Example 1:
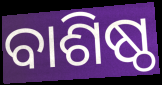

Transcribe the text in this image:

ବାଶିଷ୍ଠ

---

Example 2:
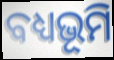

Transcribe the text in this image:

ବଧ୍ୟଭୂମି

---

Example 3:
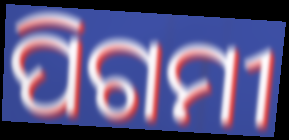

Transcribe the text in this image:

ପିଗମୀ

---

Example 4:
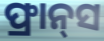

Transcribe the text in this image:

ଫ୍ରାନ୍‌ସ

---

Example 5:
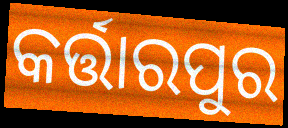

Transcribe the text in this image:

କର୍ତ୍ତାରପୁର